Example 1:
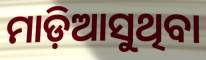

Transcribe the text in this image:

ମାଡ଼ିଆସୁଥିବା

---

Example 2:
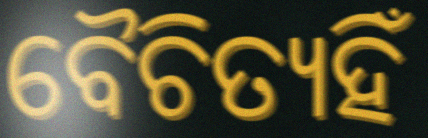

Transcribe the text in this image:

ବୈଚିତ୍ୟହିଁ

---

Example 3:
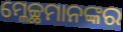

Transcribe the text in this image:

ମ୍ଳେଚ୍ଛମାନଙ୍କର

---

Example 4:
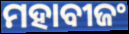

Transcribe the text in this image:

ମହାବୀଜଂ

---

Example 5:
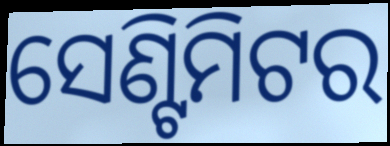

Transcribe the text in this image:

ସେଣ୍ଟିମିଟର